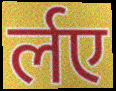
र्लए